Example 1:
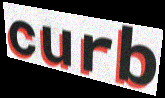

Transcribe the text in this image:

curb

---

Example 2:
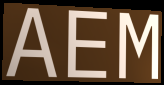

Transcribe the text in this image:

AEM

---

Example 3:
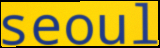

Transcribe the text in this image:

seoul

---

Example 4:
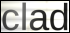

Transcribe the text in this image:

clad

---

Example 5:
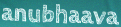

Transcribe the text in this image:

anubhaava